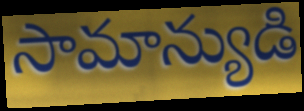
సామాన్యుడి